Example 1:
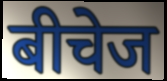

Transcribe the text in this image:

बीचेज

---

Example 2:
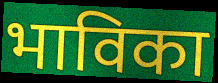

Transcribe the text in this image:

भाविका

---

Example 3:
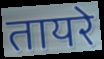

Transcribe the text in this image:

तायरे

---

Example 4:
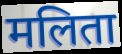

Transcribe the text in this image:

मलिता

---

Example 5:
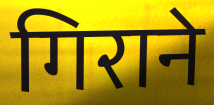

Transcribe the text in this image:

गिराने